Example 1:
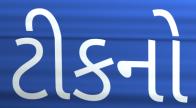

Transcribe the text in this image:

ટીકનો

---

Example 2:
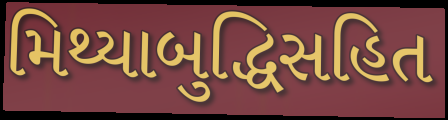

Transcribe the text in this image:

મિથ્યાબુદ્ધિસહિત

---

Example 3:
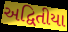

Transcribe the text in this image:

અદ્વિતીયા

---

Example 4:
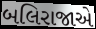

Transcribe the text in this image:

બલિરાજાએ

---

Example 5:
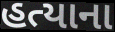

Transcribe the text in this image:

હત્યાના